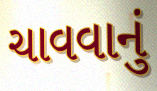
ચાવવાનું